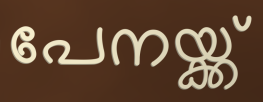
പേനയ്ക്ക്